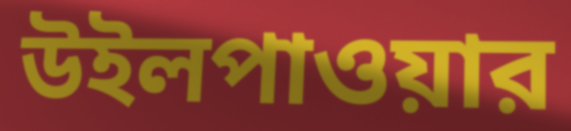
উইলপাওয়ার